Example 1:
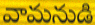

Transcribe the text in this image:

వామనుడి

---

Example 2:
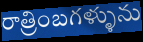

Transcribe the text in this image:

రాత్రింబగళ్ళును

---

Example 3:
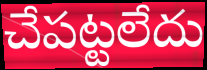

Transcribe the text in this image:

చేపట్టలేదు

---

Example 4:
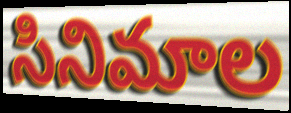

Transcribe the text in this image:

సినిమాల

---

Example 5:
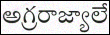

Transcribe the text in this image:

అగ్రరాజ్యాలే